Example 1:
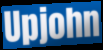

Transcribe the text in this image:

Upjohn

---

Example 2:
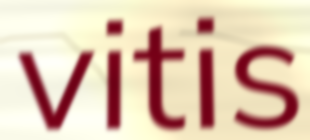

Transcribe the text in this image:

vitis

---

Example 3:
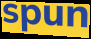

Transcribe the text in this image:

spun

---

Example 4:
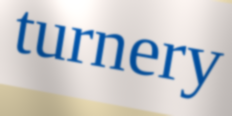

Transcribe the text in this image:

turnery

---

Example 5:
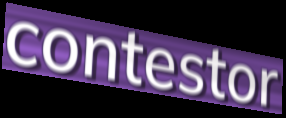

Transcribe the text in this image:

contestor